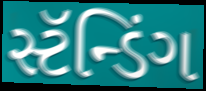
સ્ટૅન્ડિંગ